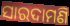
ସାରଦାମଣି